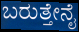
ಬರುತ್ತೇನೈ